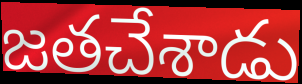
జతచేశాడు